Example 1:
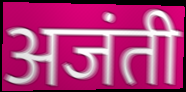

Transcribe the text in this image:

अजंती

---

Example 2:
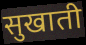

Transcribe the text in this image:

सुखाती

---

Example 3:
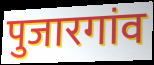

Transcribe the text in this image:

पुजारगांव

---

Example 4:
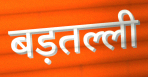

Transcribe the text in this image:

बड़तल्ली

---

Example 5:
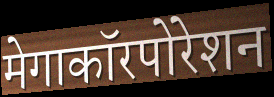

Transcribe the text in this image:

मेगाकॉरपोरेशन